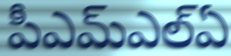
పీఎమ్ఎల్ఏ